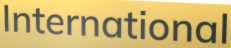
International